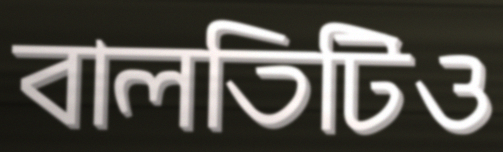
বালতিটিও